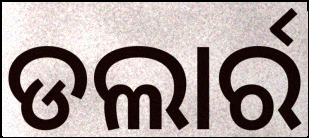
ଡଲାର୍ର